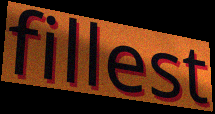
fillest